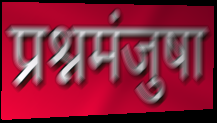
प्रश्नमंजुषा